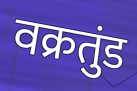
वक्रतुंड